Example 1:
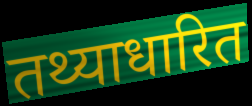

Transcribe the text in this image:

तथ्याधारित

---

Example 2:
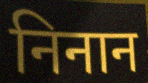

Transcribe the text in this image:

निनान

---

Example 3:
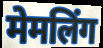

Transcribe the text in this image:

मेमलिंग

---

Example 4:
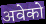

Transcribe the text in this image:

अवेको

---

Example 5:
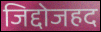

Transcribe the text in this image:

जिद्दोजहद